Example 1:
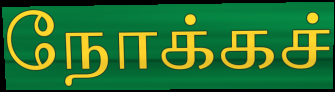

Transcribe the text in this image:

நோக்கச்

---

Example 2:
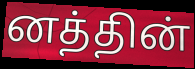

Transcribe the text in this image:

னத்தின்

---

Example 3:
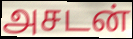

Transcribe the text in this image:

அசடன்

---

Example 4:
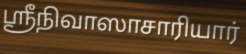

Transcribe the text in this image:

ஸ்ரீநிவாஸாசாரியார்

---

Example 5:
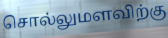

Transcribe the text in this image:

சொல்லுமளவிற்கு